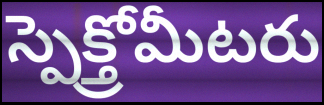
స్పెక్త్రోమీటరు